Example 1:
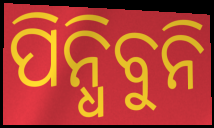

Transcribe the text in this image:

ପିନ୍ଧିବୁନି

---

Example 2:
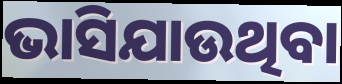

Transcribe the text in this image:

ଭାସିଯାଉଥିବା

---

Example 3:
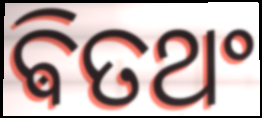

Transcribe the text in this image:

ଵିତଥଂ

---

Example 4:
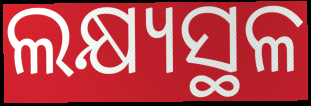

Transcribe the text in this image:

ଲକ୍ଷ୍ୟସ୍ଥଳ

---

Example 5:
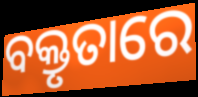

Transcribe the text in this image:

ବକ୍ତୃତାରେ